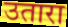
उतारा